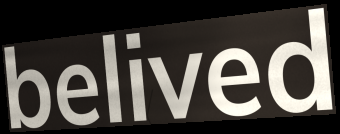
belived